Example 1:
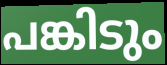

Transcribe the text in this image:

പങ്കിടും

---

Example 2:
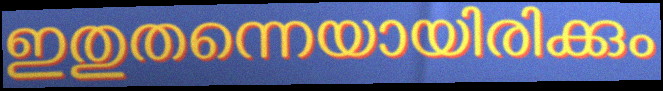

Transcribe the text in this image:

ഇതുതന്നെയായിരിക്കും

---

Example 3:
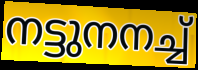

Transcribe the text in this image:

നട്ടുനനച്ച്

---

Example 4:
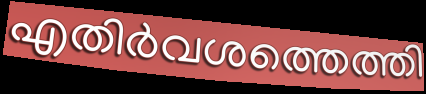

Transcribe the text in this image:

എതിർവശത്തെത്തി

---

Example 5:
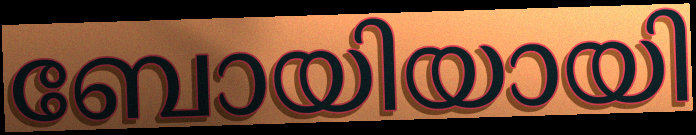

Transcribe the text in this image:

ബോയിയായി